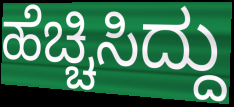
ಹೆಚ್ಚಿಸಿದ್ದು